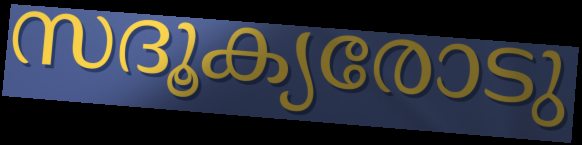
സദൂക്യരോടു